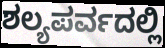
ಶಲ್ಯಪರ್ವದಲ್ಲಿ